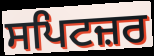
ਸਪਿਟਜ਼ਰ